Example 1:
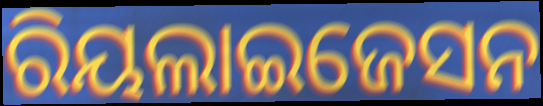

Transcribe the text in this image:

ରିୟଲାଇଜେସନ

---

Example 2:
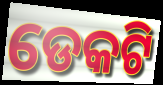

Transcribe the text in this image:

ଡେକଟି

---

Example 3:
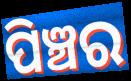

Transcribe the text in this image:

ପିଞ୍ଚର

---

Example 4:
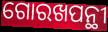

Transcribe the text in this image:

ଗୋରଖପନ୍ଥୀ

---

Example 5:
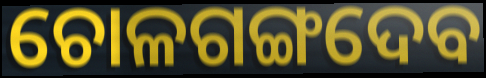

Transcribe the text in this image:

ଚୋଳଗଙ୍ଗଦେବ